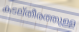
കടല്തീരത്തുള്ള